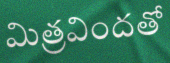
మిత్రవిందతో